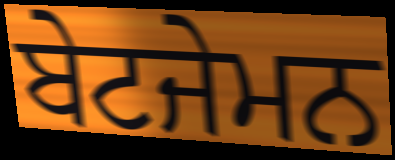
ਬੇਟਜੇਮਨ